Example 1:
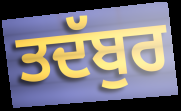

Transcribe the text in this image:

ਤਦੱਬੁਰ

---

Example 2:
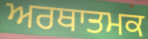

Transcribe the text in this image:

ਅਰਥਾਤਮਕ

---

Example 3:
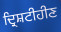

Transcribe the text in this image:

ਦ੍ਰਿਸ਼ਟੀਹੀਣ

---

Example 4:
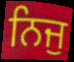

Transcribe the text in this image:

ਨਿਜੁ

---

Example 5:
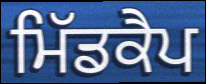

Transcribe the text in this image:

ਮਿੱਡਕੈਪ